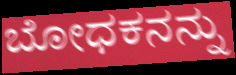
ಬೋಧಕನನ್ನು